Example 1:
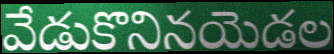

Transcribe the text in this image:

వేడుకొనినయెడల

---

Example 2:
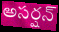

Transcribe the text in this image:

అసర్షన్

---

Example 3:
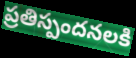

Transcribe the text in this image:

ప్రతిస్పందనలకి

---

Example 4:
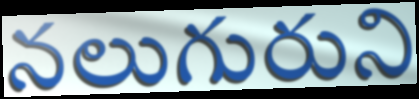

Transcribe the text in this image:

నలుగురుని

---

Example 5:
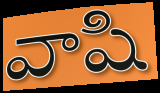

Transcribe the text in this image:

వాషి